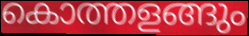
കൊത്തളങ്ങും